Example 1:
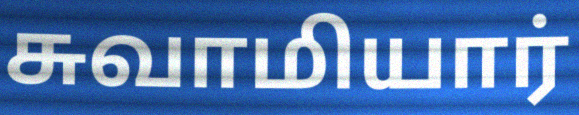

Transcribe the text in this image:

சுவாமியார்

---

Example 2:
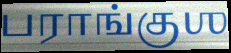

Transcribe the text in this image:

பராங்குஶ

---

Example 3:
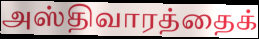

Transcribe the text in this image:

அஸ்திவாரத்தைக்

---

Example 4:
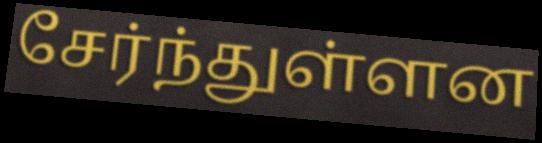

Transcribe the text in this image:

சேர்ந்துள்ளன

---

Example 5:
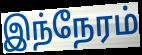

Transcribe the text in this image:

இந்நேரம்